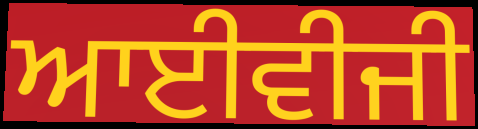
ਆਈਵੀਜੀ